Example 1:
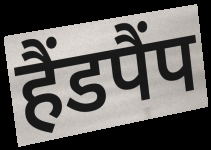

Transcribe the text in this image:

हैंडपैंप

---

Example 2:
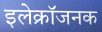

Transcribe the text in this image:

इलेक्रॉजनक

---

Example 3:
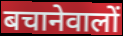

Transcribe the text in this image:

बचानेवालों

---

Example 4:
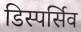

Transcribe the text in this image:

डिस्पर्सिव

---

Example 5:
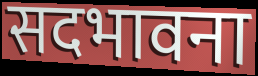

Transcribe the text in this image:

सदभावना